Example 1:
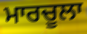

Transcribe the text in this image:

ਮਾਰਚੂਲਾ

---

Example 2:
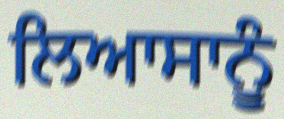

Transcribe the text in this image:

ਲਿਆਸਾਨੂੰ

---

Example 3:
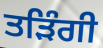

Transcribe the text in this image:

ਤੜਿੰਗੀ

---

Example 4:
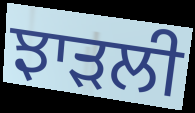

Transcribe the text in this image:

ਝਾੜਲੀ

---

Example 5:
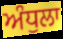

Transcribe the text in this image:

ਅੰਧੁਲਾ